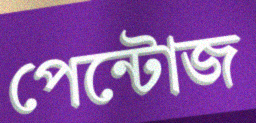
পেন্টোজ